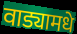
वाड्यामधे